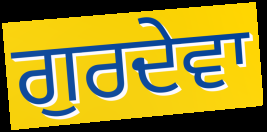
ਗੁਰਦੇਵਾ